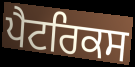
ਪੈਟਰਿਕਸ